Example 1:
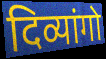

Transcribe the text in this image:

दिव्यांगो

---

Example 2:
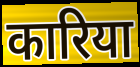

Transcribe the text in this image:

कारिया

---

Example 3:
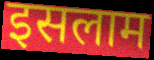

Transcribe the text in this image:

इसलाम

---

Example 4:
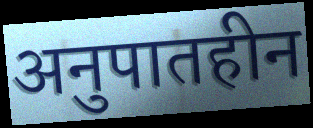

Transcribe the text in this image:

अनुपातहीन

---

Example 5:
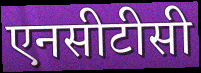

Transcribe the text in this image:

एनसीटीसी